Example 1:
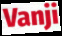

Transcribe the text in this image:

Vanji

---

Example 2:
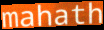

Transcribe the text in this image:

mahath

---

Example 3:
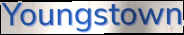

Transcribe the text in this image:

Youngstown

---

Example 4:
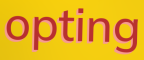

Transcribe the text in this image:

opting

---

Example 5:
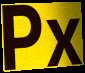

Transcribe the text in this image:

Px